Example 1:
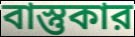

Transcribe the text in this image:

বাস্তুকার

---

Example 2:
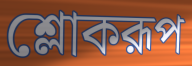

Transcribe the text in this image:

শ্লোকরূপ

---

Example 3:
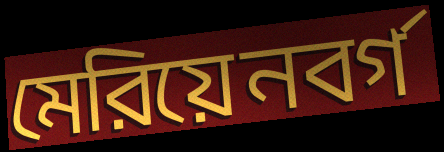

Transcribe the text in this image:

মেরিয়েনবর্গ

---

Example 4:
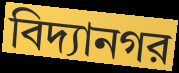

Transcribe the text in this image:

বিদ্যানগর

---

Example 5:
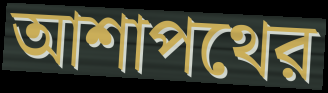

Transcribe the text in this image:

আশাপথের